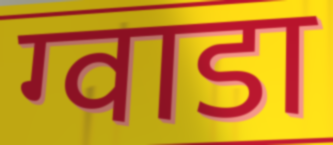
ग्वाडा